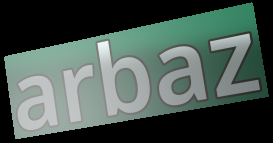
arbaz